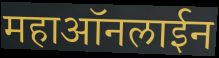
महाऑनलाईन